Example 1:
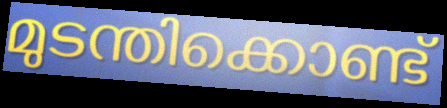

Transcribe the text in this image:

മുടന്തിക്കൊണ്ട്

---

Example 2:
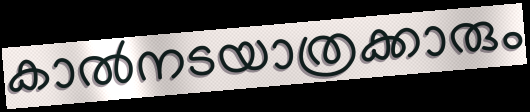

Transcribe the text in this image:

കാൽനടയാത്രക്കാരും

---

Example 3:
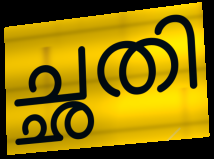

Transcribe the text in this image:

ച്ഛതി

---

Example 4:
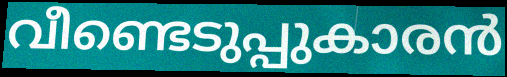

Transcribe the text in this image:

വീണ്ടെടുപ്പുകാരൻ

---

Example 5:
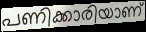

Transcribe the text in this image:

പണിക്കാരിയാണ്